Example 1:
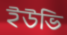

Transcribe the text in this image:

ইউভি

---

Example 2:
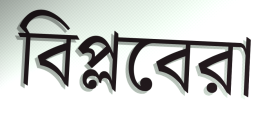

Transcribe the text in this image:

বিপ্লবেরা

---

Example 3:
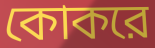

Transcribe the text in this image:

কোকরে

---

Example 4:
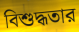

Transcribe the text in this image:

বিশুদ্ধতার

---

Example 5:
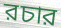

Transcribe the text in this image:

রচার